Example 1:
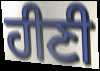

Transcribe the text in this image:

ਹੀਣੀ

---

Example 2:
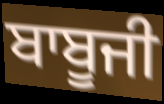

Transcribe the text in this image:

ਬਾਬੂਜੀ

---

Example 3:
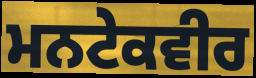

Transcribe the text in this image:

ਮਨਟੇਕਵੀਰ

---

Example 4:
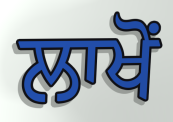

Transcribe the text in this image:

ਲਾਖੋਂ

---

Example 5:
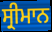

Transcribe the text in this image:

ਸ੍ਰੀਮਾਨ